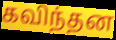
கவிந்தன